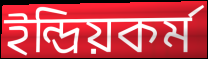
ইন্দ্রিয়কর্ম